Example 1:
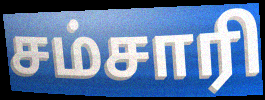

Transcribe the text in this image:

சம்சாரி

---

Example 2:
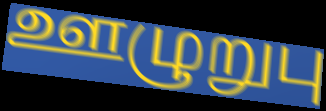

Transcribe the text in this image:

ஊழுறுபு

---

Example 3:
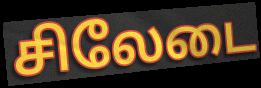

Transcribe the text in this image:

சிலேடை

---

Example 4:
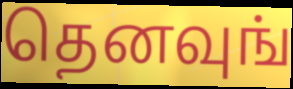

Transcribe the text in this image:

தெனவுங்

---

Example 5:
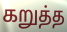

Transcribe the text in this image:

கறுத்த